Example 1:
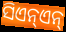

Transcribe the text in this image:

ସିଏନ୍ଏନ୍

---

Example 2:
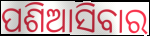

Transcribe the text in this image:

ପଶିଆସିବାର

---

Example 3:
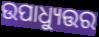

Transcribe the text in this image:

ଉପାଧ୍ୟୁତ୍ତର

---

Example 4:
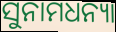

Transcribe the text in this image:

ସୁନାମଧନ୍ୟା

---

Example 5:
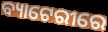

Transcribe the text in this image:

ବ୍ୟାଟେରୀରେ